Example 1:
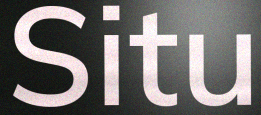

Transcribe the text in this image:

Situ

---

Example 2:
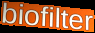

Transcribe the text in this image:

biofilter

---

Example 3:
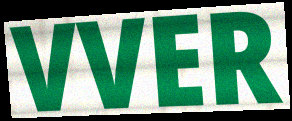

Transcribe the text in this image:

VVER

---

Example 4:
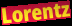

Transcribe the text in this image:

Lorentz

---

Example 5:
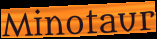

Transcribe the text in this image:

Minotaur